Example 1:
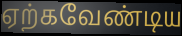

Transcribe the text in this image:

ஏற்கவேண்டிய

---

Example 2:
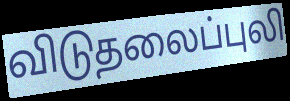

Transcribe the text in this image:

விடுதலைப்புலி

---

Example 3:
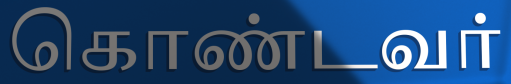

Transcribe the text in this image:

கொண்டவர்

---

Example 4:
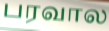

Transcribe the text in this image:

பரவால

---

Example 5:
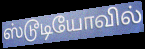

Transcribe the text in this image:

ஸ்டூடியோவில்